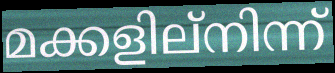
മക്കളില്നിന്ന്